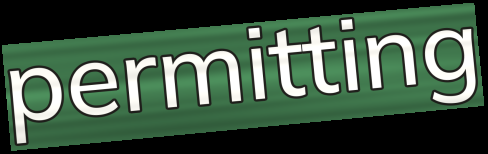
permitting